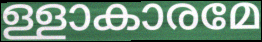
ള്ളാകാരമേ